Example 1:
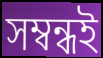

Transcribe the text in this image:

সম্বন্ধই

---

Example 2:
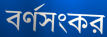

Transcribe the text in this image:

বর্ণসংকর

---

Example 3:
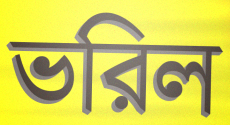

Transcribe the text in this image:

ভরিল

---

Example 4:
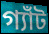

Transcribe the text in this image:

গ্যাঁট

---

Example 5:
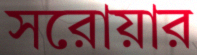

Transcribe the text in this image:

সরোয়ার